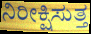
ನಿರೀಕ್ಷಿಸುತ್ತ